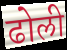
ढोली